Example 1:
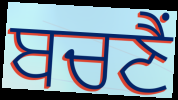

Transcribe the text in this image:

ਬਚਣੈਂ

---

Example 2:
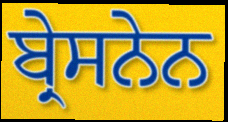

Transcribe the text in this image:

ਬ੍ਰੇਸਨੇਨ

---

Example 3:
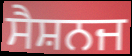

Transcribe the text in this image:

ਸੈਸ਼ਨਜ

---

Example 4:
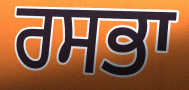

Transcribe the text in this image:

ਰਸਭਾ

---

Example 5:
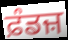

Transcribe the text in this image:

ਫ਼ੰਡਜ਼